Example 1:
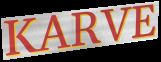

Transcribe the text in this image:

KARVE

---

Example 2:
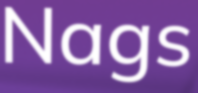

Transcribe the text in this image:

Nags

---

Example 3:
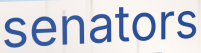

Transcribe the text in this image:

senators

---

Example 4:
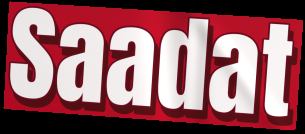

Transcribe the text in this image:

Saadat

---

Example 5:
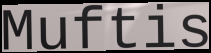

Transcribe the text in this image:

Muftis